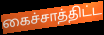
கைச்சாத்திட்ட